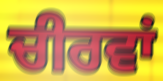
ਚੀਰਵਾਂ